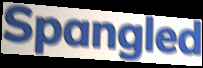
Spangled